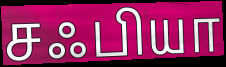
சஃபியா